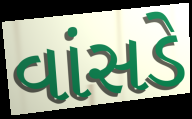
વાંસડે